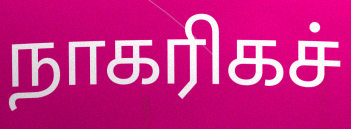
நாகரிகச்